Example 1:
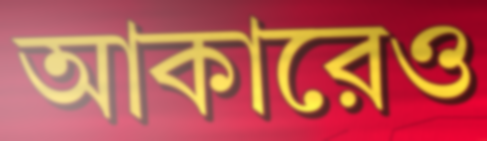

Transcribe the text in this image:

আকারেও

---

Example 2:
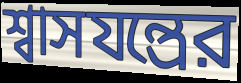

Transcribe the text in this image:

শ্বাসযন্ত্রের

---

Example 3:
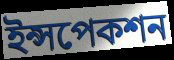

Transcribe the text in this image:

ইন্সপেকশন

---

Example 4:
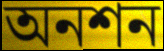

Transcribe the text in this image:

অনশন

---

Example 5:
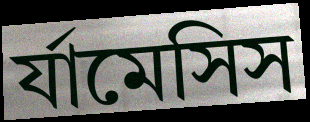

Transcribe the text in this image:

র্যামেসিস